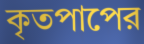
কৃতপাপের